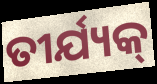
ତୀର୍ଯ୍ୟକ୍